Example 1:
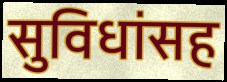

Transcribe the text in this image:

सुविधांसह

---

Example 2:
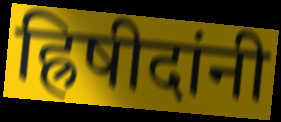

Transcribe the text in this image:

ह्रिषीदांनी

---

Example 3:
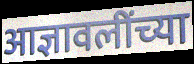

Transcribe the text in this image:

आज्ञावलींच्या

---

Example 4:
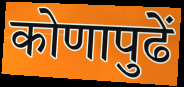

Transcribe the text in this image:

कोणापुढें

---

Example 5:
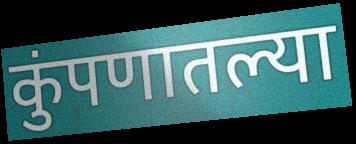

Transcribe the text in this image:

कुंपणातल्या